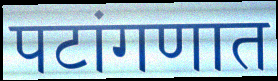
पटांगणात